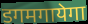
डगमगायेगा